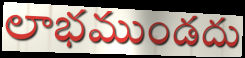
లాభముండదు